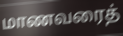
மாணவரைத்